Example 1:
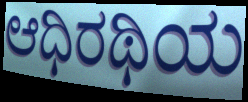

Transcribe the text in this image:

ಆಧಿರಥಿಯ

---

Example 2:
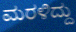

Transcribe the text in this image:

ಮರಳಿದ್ದು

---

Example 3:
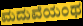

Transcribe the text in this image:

ಮದುವೆಯಂಥ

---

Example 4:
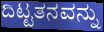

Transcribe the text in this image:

ದಿಟ್ಟತನವನ್ನು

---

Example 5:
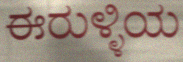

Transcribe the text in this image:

ಈರುಳ್ಳಿಯ